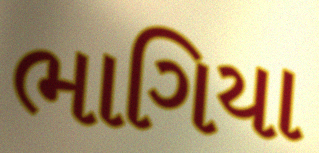
ભાગિયા